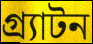
গ্র্যাটন